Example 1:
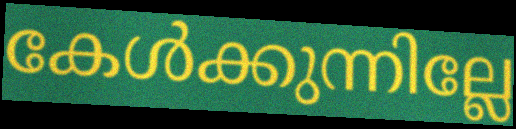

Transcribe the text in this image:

കേൾക്കുന്നില്ലേ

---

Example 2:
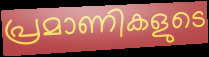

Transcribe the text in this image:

പ്രമാണികളുടെ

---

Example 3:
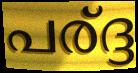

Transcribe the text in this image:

പര്ദ്ദ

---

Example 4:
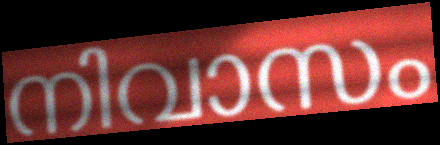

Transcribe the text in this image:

നിവാസം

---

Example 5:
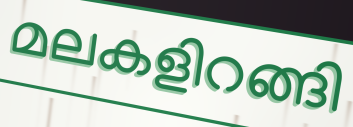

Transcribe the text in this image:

മലകളിറങ്ങി